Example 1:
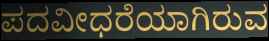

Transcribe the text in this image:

ಪದವೀಧರೆಯಾಗಿರುವ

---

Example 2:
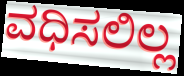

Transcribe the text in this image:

ವಧಿಸಲಿಲ್ಲ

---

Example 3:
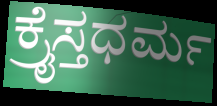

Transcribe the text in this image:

ಕ್ರೈಸ್ತಧರ್ಮ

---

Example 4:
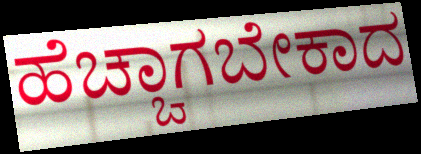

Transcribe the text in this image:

ಹೆಚ್ಚಾಗಬೇಕಾದ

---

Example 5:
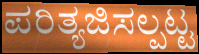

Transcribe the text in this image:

ಪರಿತ್ಯಜಿಸಲ್ಪಟ್ಟ